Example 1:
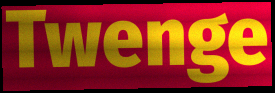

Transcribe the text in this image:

Twenge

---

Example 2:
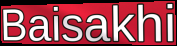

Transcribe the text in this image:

Baisakhi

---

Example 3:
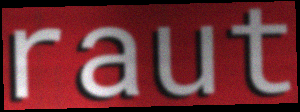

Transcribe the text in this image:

raut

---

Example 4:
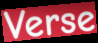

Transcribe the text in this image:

Verse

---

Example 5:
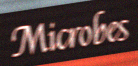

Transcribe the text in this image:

Microbes